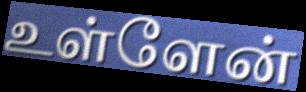
உள்ளேன்